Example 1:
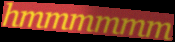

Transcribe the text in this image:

hmmmmmm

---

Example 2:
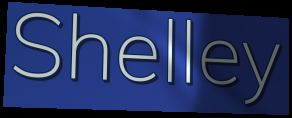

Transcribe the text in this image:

Shelley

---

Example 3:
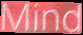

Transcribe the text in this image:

Mind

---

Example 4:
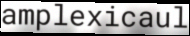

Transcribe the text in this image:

amplexicaul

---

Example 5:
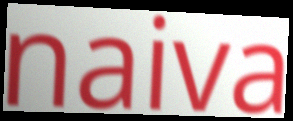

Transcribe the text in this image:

naiva